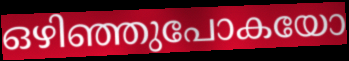
ഒഴിഞ്ഞുപോകയോ